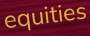
equities